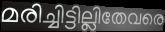
മരിച്ചിട്ടില്ലിതേവരെ